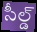
సీల్డ్